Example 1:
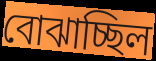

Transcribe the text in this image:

বোঝাচ্ছিল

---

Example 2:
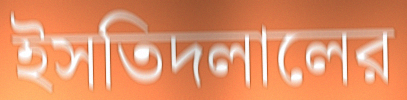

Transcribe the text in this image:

ইসতিদলালের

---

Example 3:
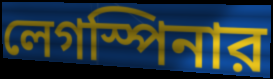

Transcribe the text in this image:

লেগস্পিনার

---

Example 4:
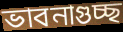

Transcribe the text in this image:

ভাবনাগুচ্ছ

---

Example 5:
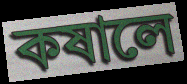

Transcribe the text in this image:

কষালে